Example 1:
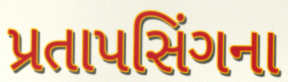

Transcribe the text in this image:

પ્રતાપસિંગના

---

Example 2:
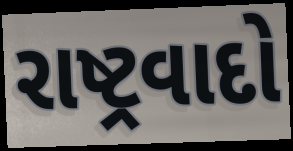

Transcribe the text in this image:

રાષ્ટ્રવાદો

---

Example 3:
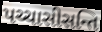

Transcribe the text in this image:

પચ્ચાસીસન્તિ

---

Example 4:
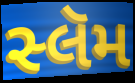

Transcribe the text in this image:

સ્લૅમ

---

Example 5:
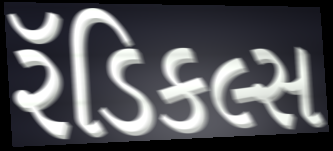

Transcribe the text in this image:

રૅડિકલ્સ